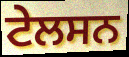
ਟੇਲਸਨ